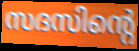
സദസിന്റെ